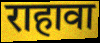
राहावा